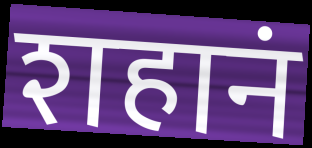
शहानं